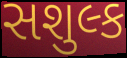
સશુલ્ક